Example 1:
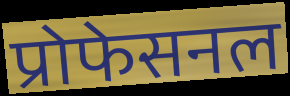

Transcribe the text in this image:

प्रोफेसनल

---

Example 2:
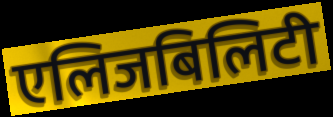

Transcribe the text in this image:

एलिजबिलिटी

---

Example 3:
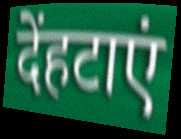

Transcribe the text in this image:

देंहटाएं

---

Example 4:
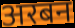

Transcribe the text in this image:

अरबन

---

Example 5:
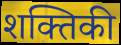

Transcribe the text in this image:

शक्तिकी